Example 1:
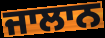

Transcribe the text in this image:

ਜਾਲਾਨ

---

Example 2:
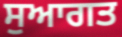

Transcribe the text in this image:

ਸੁਆਗਤ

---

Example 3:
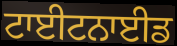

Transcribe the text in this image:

ਟਾਈਟਨਾਈਡ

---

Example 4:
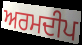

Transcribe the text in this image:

ਅਰਮਦੀਪ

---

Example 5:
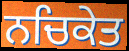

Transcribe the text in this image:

ਨਚਿਕੇਤ